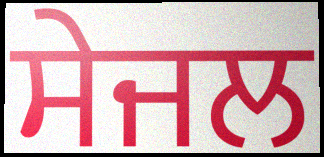
ਸੇਜਲ